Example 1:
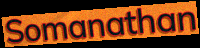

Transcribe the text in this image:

Somanathan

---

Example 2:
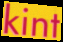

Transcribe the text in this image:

kint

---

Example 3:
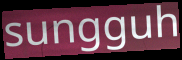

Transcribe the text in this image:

sungguh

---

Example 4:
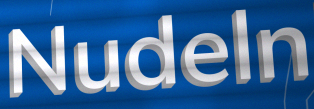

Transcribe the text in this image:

Nudeln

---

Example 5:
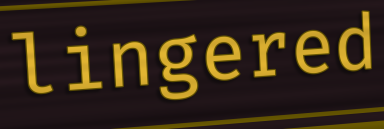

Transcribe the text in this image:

lingered